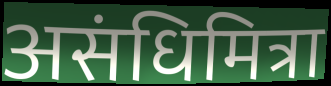
असंधिमित्रा